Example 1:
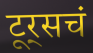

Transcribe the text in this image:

टूर्सचं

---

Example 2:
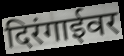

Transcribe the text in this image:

दिरंगाईवर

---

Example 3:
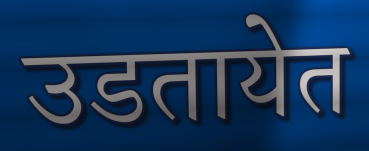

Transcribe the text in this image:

उडतायेत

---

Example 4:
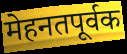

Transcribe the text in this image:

मेहनतपूर्वक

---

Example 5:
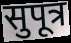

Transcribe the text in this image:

सुपूत्र